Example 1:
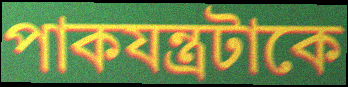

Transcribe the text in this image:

পাকযন্ত্রটাকে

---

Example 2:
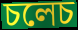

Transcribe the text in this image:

চলেচ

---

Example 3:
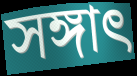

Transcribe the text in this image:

সঙ্গাৎ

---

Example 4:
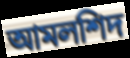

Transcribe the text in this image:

আমলশিদ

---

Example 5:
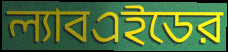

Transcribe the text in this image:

ল্যাবএইডের